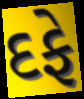
દફે